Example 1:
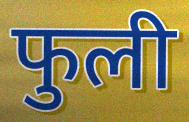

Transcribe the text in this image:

फुली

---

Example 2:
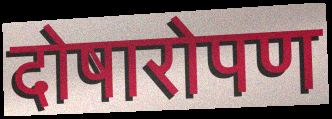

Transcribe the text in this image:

दोषारोपण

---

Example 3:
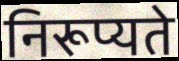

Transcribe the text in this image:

निरूप्यते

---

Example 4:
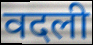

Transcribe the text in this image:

वदली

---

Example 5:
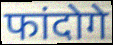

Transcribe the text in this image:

फांदोगे